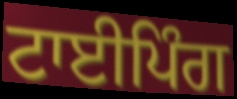
ਟਾਈਪਿੰਗ